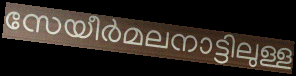
സേയീർമലനാട്ടിലുള്ള